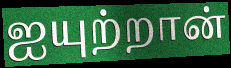
ஐயுற்றான்